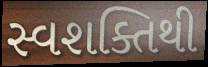
સ્વશક્તિથી